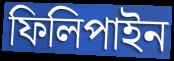
ফিলিপাইন